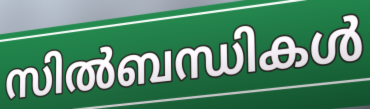
സിൽബന്ധികൾ